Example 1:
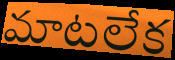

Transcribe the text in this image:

మాటలేక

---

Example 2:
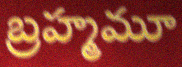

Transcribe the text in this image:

బ్రహ్మమూ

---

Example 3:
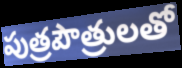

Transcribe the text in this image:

పుత్రపౌత్రులతో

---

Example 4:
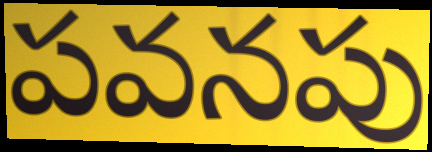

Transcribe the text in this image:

పవనపు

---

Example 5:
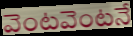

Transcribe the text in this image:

వెంటవెంటనే